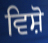
ਵਿਸ਼ੋ